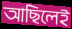
আছিলেই